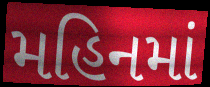
મહિનમાં